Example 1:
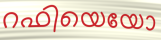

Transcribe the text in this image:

റഫിയെയോ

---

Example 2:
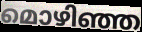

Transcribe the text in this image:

മൊഴിഞ്ഞ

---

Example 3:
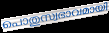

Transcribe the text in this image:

പൊതുസ്വഭാവമായി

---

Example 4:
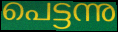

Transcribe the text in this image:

പെട്ടന്നു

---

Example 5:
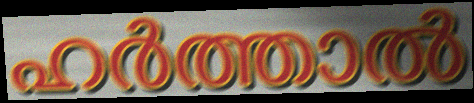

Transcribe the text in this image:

ഹർത്താൽ